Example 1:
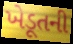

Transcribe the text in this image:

ખેડૂતની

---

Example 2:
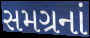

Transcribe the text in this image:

સમગ્રનાં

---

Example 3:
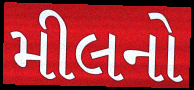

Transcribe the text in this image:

મીલનો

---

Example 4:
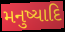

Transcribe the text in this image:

મનુષ્યાદિ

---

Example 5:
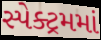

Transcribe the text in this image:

સ્પેક્ટ્રમમાં